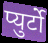
प्युर्टो